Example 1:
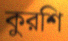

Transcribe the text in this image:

কুরশি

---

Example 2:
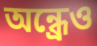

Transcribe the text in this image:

অন্ধ্রেও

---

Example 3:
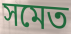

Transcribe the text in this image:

সমেত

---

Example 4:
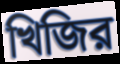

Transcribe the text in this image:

খিজির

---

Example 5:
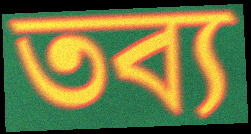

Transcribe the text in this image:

তব্য